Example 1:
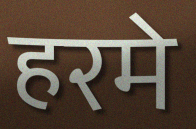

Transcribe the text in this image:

हरमे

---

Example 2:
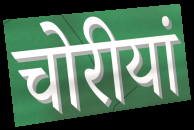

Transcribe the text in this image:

चोरीयां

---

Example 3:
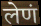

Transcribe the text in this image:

लेणं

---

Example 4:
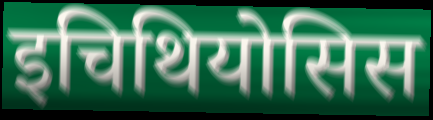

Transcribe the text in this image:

इचिथियोसिस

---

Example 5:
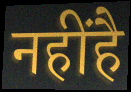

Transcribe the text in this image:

नहींहै